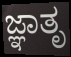
ಜ್ಞಾತೃ